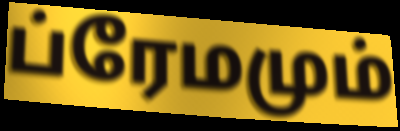
ப்ரேமமும்